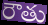
రౌతు